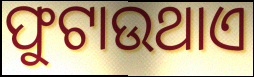
ଫୁଟାଉଥାଏ